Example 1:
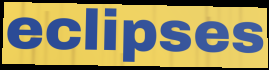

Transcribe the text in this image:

eclipses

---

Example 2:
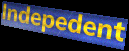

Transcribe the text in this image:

Indepedent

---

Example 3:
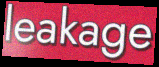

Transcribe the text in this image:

leakage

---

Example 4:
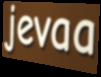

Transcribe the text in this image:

jevaa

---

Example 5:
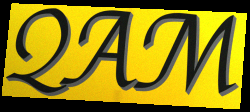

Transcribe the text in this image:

QAM